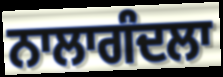
ਨਾਲਾਗੰਦਲਾ